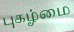
புகழ்மை